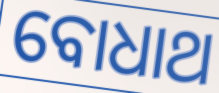
ବୋଧାଥ